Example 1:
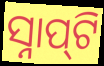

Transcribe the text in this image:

ସ୍ନାପ୍‍ଟି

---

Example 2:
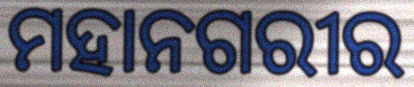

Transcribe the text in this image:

ମହାନଗରୀର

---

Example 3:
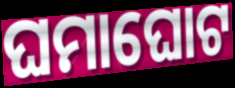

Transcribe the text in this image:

ଘମାଘୋଟ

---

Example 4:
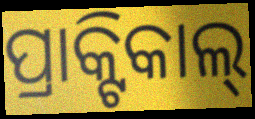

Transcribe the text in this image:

ପ୍ରାକ୍ଟିକାଲ୍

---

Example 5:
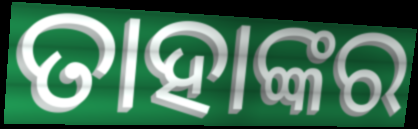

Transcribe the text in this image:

ତାହାଙ୍କର